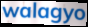
walagyo